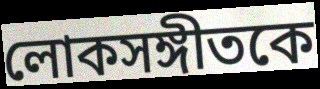
লোকসঙ্গীতকে